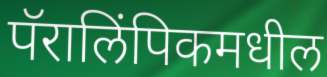
पॅरालिंपिकमधील